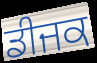
ਡੀਜਕ